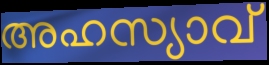
അഹസ്യാവ്